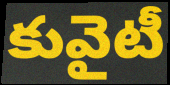
కువైటీ